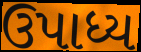
ઉપાધ્ય